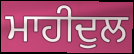
ਮਾਹੀਦੁਲ